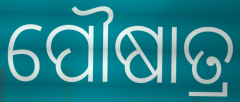
ପୌଷାତ୍ର